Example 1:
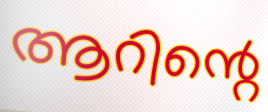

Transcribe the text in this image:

ആറിന്റെ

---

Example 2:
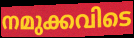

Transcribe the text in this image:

നമുക്കവിടെ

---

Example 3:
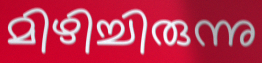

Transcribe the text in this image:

മിഴിച്ചിരുന്നു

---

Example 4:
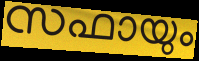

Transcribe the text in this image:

സഫായും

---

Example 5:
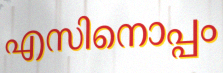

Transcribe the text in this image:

എസിനൊപ്പം